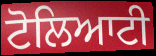
ਟੋਲਿਆਟੀ